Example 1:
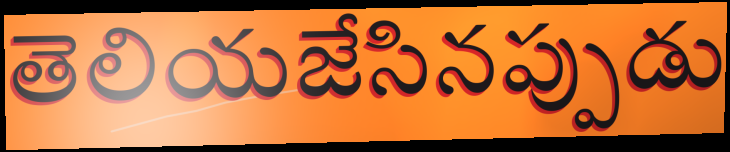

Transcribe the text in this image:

తెలియజేసినప్పుడు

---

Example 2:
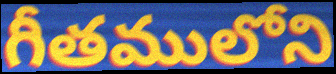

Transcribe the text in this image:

గీతములోని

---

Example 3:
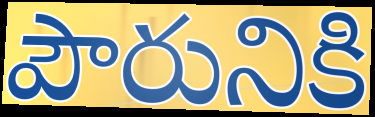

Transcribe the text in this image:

పౌరునికి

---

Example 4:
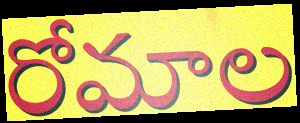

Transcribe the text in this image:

రోమాల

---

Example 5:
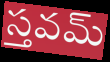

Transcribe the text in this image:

స్తవమ్